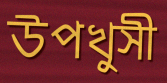
উপখুসী